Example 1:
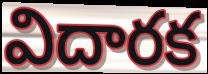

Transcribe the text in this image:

విదారక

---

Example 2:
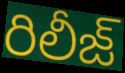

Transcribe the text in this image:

రిలీజ్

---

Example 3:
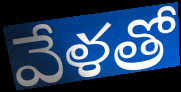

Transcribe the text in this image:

వేళతో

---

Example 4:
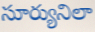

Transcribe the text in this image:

సూర్యునిలా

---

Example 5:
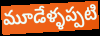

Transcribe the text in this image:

మూడేళ్ళప్పటి